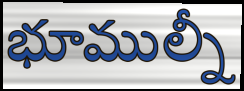
భూముల్నీ